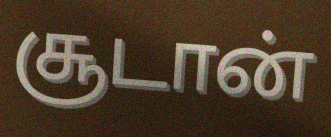
சூடான்